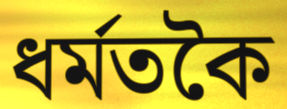
ধৰ্মতকৈ